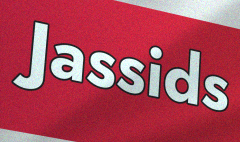
Jassids